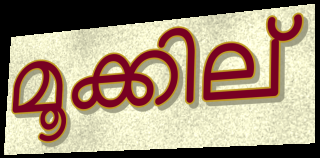
മൂക്കില്